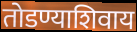
तोडण्याशिवाय